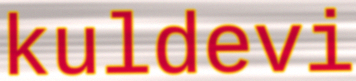
kuldevi